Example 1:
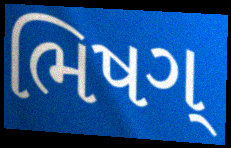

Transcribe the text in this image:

ભિષગ્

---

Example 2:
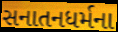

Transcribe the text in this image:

સનાતનધર્મના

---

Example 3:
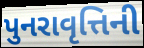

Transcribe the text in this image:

પુનરાવૃત્તિની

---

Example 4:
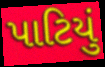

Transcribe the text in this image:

પાટિયું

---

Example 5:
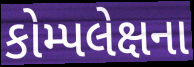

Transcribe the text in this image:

કોમ્પલેક્ષના